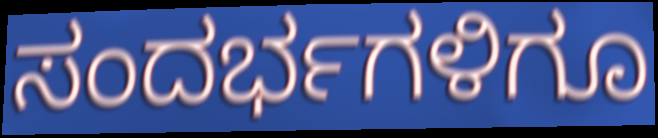
ಸಂದರ್ಭಗಳಿಗೂ